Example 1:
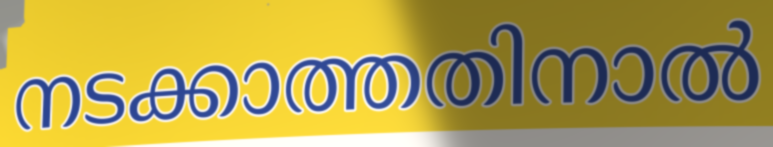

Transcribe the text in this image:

നടക്കാത്തതിനാൽ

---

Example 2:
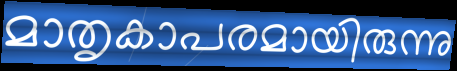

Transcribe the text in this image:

മാതൃകാപരമായിരുന്നു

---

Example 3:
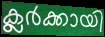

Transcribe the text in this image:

ക്ലർക്കായി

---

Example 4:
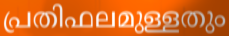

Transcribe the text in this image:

പ്രതിഫലമുള്ളതും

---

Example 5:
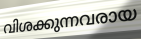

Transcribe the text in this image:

വിശക്കുന്നവരായ